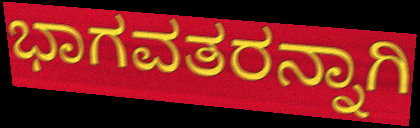
ಭಾಗವತರನ್ನಾಗಿ